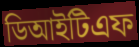
ডিআইটিএফ